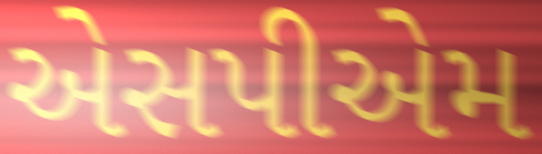
એસપીએમ